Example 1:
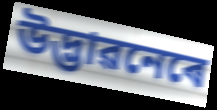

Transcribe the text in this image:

উদ্ভাৱনেৰে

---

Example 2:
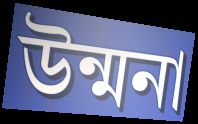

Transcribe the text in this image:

উন্মনা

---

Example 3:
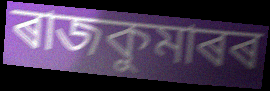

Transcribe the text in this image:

ৰাজকুমাৰৰ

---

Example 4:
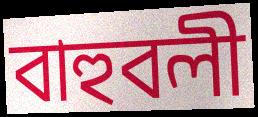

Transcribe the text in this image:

বাহুবলী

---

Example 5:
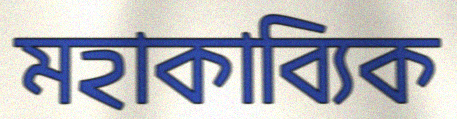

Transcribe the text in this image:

মহাকাব্যিক